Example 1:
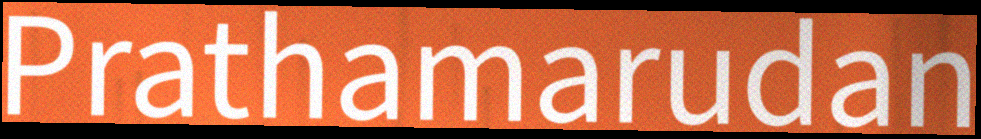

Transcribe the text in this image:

Prathamarudan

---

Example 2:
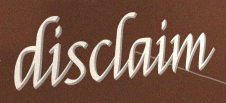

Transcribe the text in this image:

disclaim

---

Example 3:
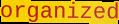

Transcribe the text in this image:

organized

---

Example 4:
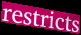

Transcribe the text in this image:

restricts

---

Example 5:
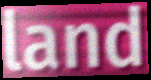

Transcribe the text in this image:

land